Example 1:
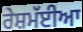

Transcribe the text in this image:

ਰੇਸ਼ਮੱਈਆ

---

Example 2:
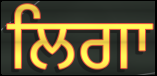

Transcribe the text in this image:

ਲਿਗਾ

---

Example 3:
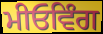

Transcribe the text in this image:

ਮੀਓਵਿੰਗ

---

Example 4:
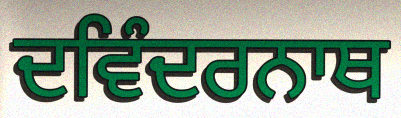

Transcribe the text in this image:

ਦਵਿੰਦਰਨਾਥ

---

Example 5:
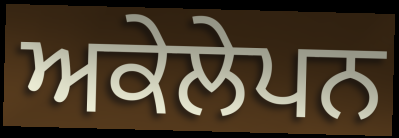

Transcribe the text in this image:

ਅਕੇਲੇਪਨ